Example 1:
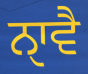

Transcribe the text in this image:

ਨੑਾਵੈ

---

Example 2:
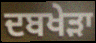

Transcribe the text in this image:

ਦਬਖੇੜਾ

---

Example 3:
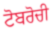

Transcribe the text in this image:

ਟੋਬਰੋਚੀ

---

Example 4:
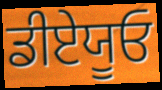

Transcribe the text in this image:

ਡੀਏਯੂਓ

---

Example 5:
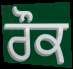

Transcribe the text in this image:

ਰੌਕ